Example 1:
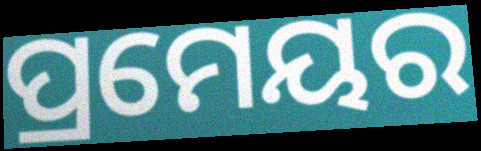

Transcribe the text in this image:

ପ୍ରମେୟର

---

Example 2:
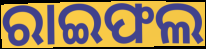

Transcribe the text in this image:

ରାଇଫଲ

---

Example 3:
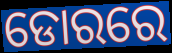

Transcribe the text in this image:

ଡୋରରେ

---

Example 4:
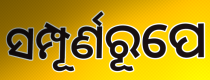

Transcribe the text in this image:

ସମ୍ପୂର୍ଣରୂପେ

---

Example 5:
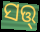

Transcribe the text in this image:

ସତ୍ତ୍